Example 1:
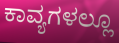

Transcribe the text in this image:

ಕಾವ್ಯಗಳಲ್ಲೂ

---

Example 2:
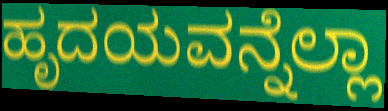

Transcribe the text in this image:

ಹೃದಯವನ್ನೆಲ್ಲಾ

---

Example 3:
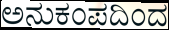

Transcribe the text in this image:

ಅನುಕಂಪದಿಂದ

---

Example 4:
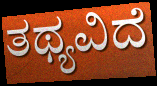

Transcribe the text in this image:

ತಥ್ಯವಿದೆ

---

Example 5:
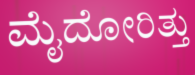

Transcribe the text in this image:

ಮೈದೋರಿತ್ತು